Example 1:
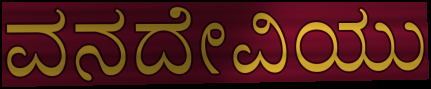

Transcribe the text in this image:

ವನದೇವಿಯು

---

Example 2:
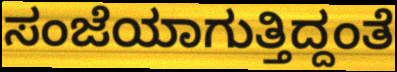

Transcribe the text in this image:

ಸಂಜೆಯಾಗುತ್ತಿದ್ದಂತೆ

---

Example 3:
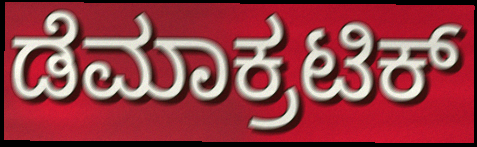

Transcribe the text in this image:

ಡೆಮಾಕ್ರಟಿಕ್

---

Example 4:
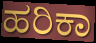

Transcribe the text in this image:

ಹರಿಕಾ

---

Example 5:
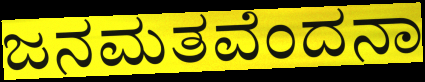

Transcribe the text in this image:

ಜನಮತವೆಂದನಾ